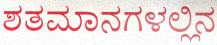
ಶತಮಾನಗಳಲ್ಲಿನ